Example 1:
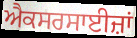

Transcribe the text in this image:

ਐਕਸਰਸਾਈਜ਼ਾਂ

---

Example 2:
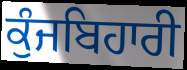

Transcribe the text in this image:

ਕੁੰਜਬਿਹਾਰੀ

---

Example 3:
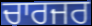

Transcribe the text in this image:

ਚਾਰਜਰ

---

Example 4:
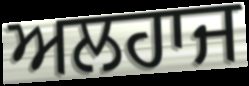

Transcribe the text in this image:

ਅਲਹਾਜ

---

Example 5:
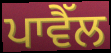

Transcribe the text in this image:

ਪਾਵੈੱਲ